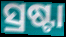
ସ୍ରଷ୍ଟା